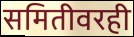
समितीवरही